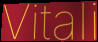
Vitali